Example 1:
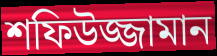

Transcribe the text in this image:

শফিউজ্জামান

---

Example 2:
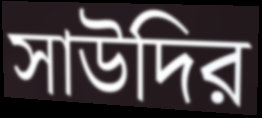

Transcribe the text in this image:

সাউদির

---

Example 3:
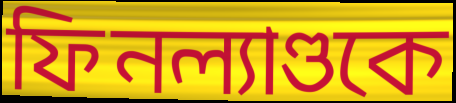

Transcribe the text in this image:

ফিনল্যাণ্ডকে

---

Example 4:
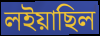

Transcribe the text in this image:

লইয়াছিল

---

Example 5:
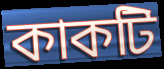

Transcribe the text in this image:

কাকটি